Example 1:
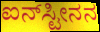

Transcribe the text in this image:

ಐನ್‌ಸ್ಟೀನನ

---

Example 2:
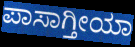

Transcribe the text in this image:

ಪಾಸಾಗ್ತೀಯಾ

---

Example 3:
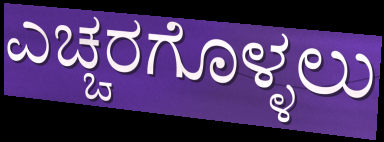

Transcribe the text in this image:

ಎಚ್ಚರಗೊಳ್ಳಲು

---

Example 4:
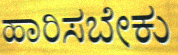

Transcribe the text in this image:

ಹಾರಿಸಬೇಕು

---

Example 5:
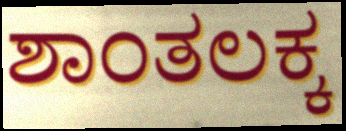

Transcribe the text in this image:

ಶಾಂತಲಕ್ಕ